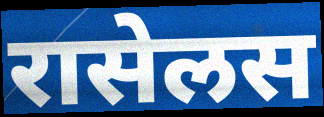
रासेलस